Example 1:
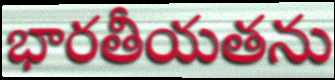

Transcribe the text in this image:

భారతీయతను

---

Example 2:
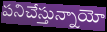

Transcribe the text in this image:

పనిచేస్తున్నాయో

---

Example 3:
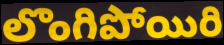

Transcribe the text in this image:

లొంగిపోయిరి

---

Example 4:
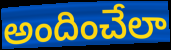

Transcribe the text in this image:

అందించేలా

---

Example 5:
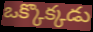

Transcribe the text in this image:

ఒక్కొక్కడు